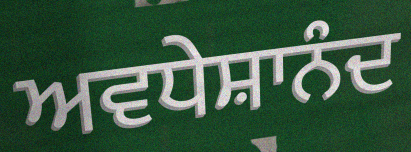
ਅਵਧੇਸ਼ਾਨੰਦ